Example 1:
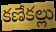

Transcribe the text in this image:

కణేకల్లు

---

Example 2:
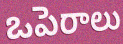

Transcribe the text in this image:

ఒపెరాలు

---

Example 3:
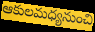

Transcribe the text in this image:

ఆకులమధ్యనుంచి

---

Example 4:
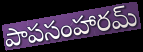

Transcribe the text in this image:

పాపసంహారమ్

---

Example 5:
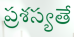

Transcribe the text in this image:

ప్రశస్యతే